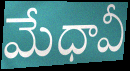
మేధావీ